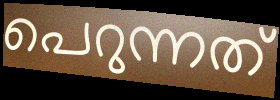
പെറുന്നത്